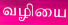
வழியை